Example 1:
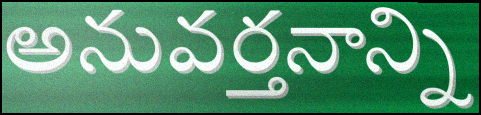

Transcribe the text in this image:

అనువర్తనాన్ని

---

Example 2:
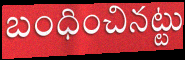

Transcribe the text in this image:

బంధించినట్టు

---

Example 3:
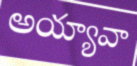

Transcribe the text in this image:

అయ్యావా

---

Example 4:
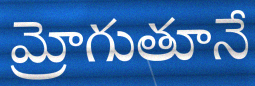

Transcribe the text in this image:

మ్రోగుతూనే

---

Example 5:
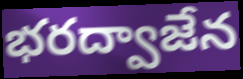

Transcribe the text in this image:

భరద్వాజేన